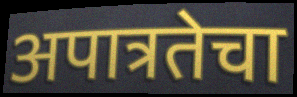
अपात्रतेचा